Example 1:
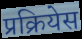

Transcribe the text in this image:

प्रक्रियेस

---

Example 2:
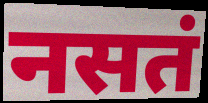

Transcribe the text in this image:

नसतं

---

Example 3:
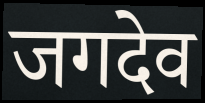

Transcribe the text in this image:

जगदेव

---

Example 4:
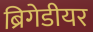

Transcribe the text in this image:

ब्रिगेडीयर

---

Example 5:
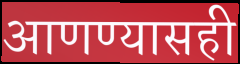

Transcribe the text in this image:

आणण्यासही